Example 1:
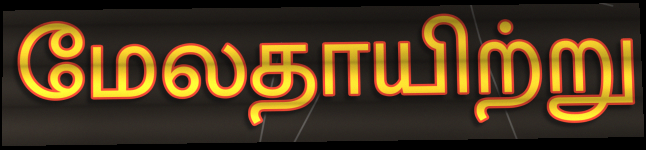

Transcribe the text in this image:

மேலதாயிற்று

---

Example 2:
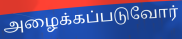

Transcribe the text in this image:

அழைக்கப்படுவோர்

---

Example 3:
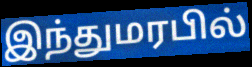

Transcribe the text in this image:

இந்துமரபில்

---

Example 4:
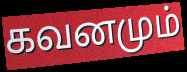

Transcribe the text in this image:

கவனமும்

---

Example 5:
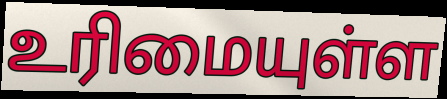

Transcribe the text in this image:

உரிமையுள்ள